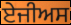
ਏਜੀਅਸ